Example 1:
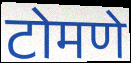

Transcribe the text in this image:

टोमणे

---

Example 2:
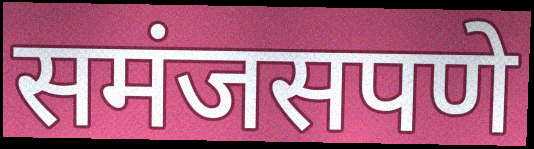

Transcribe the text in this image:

समंजसपणे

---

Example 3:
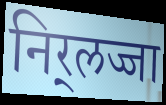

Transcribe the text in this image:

निर्लज्जा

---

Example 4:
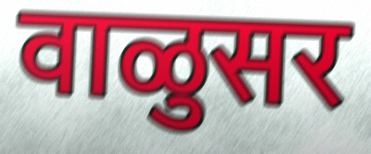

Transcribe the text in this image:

वाळुसर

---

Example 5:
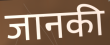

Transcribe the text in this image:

जानकी